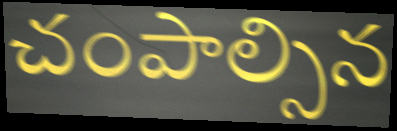
చంపాల్సిన